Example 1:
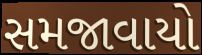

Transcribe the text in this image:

સમજાવાયો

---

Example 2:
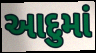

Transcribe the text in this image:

આદુમાં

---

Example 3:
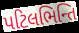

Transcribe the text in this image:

પટિલભિન્તિ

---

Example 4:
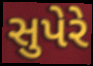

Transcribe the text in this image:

સુપેરે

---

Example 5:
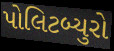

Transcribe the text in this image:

પોલિટબ્યુરો